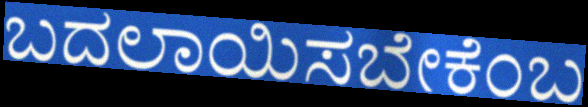
ಬದಲಾಯಿಸಬೇಕೆಂಬ